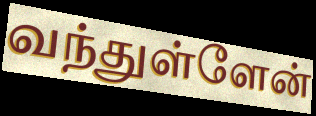
வந்துள்ளேன்